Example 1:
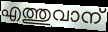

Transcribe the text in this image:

എത്തുവാന്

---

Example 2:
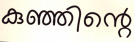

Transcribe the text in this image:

കുഞ്ഞിന്റെ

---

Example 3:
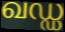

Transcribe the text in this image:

ഖഡ്ഡ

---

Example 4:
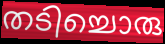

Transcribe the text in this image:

തടിച്ചൊരു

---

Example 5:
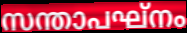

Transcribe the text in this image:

സന്താപഘ്നം